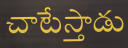
చాటేస్తాడు